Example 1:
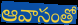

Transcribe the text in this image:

ఆవాసంతో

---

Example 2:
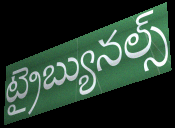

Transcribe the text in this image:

ట్రైబ్యునల్స్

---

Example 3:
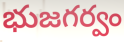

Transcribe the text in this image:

భుజగర్వం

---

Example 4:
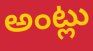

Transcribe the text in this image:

అంట్లు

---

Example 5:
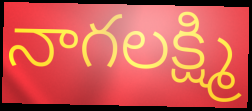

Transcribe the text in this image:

నాగలక్ష్మి